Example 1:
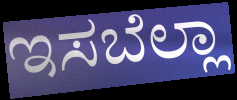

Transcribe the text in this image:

ಇಸಬೆಲ್ಲಾ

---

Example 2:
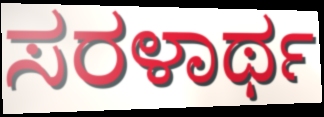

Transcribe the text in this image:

ಸರಳಾರ್ಥ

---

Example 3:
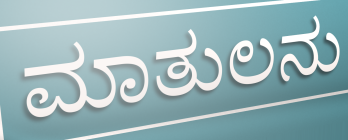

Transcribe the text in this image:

ಮಾತುಲನು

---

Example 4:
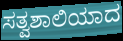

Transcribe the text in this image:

ಸತ್ವಶಾಲಿಯಾದ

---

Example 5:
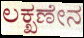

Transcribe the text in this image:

ಲಕ್ಖಣೇನ